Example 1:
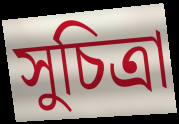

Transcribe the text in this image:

সুচিত্রা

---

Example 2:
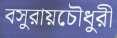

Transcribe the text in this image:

বসুরায়চৌধুরী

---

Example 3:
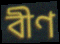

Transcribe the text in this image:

বীণ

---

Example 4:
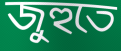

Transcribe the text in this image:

জুহুতে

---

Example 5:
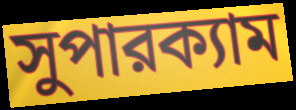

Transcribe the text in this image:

সুপারক্যাম